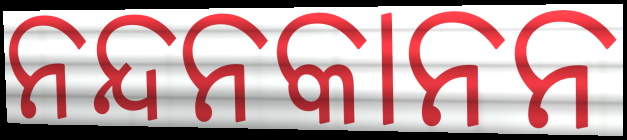
ନନ୍ଦନକାନନ